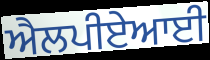
ਐਲਪੀਏਆਈ